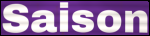
Saison